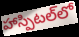
హాస్పిటల్‌లో